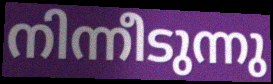
നിന്നീടുന്നു